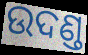
ଉଦଣ୍ଡ